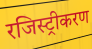
रजिस्‍ट्रीकरण